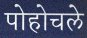
पोहोचले